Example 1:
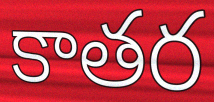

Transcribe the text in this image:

కాతర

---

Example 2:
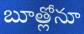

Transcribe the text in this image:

బూత్లోనూ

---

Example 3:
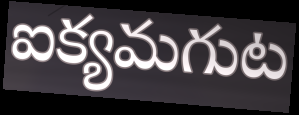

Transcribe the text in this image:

ఐక్యమగుట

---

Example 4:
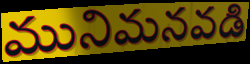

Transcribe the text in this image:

మునిమనవడి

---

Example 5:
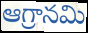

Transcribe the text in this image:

ఆగ్రానమి